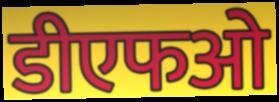
डीएफओ